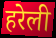
हरेली